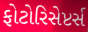
ફોટોરિસેપ્ટર્સ